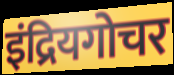
इंद्रियगोचर